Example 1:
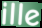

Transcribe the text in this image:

ille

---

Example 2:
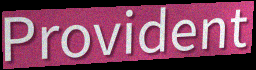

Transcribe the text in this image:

Provident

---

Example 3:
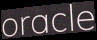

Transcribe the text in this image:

oracle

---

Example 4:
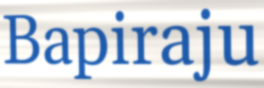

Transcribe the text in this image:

Bapiraju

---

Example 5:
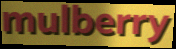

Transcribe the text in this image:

mulberry